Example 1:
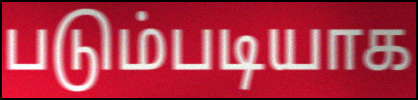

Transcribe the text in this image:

படும்படியாக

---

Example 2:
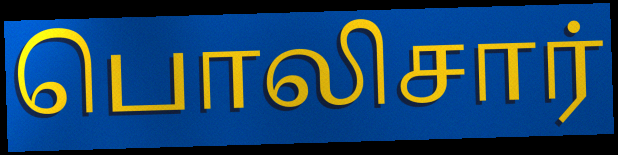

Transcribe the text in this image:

பொலிசார்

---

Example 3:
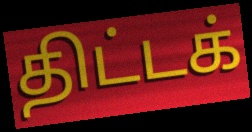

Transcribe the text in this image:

திட்டக்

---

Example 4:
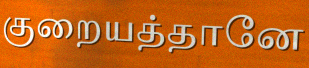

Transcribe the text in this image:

குறையத்தானே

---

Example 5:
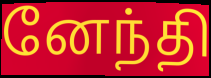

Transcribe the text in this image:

னேந்தி